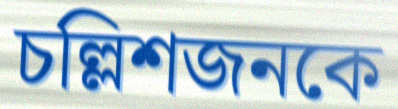
চল্লিশজনকে